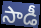
సాడీ